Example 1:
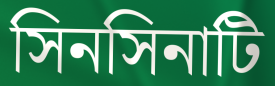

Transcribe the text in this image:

সিনসিনাটি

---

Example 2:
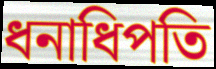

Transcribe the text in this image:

ধনাধিপতি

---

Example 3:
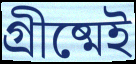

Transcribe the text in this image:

গ্রীষ্মেই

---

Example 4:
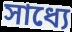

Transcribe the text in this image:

সাধ্যে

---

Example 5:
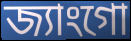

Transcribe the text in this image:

জ্যাংগো